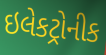
ઇલેકટ્રોનીક